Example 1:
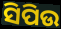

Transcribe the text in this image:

ସିପିଉ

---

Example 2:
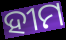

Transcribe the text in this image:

ହୀମ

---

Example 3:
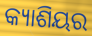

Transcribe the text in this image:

କ୍ୟାଶିୟର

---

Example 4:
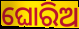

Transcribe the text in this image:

ଘୋରିଅ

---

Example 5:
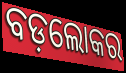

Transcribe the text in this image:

ବଡ଼ଲୋକର